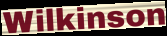
Wilkinson